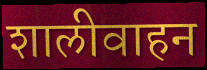
शालीवाहन